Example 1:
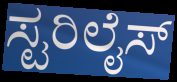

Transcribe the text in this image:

ಸ್ಟರಿಲೈಸ್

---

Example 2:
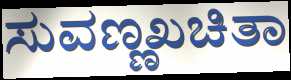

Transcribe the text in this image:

ಸುವಣ್ಣಖಚಿತಾ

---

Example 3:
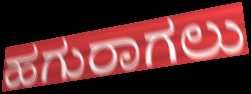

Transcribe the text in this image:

ಹಗುರಾಗಲು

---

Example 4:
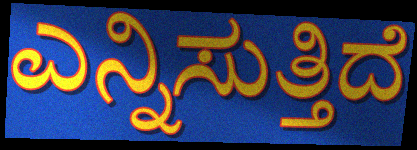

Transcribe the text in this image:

ಎನ್ನಿಸುತ್ತಿದೆ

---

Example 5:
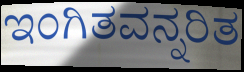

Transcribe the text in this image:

ಇಂಗಿತವನ್ನರಿತ